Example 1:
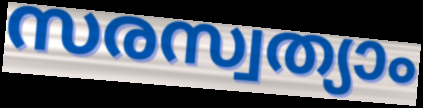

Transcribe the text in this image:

സരസ്വത്യാം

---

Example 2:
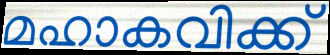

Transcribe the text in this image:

മഹാകവിക്ക്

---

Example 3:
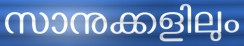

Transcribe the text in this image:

സാനുക്കളിലും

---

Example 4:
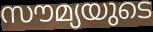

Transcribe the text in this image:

സൗമ്യയുടെ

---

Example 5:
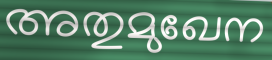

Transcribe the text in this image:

അതുമുഖേന